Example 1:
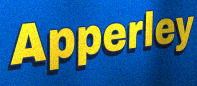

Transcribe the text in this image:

Apperley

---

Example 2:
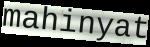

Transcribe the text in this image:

mahinyat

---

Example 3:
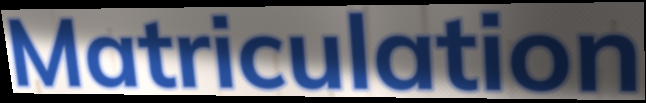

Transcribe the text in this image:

Matriculation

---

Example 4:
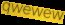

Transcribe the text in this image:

qwewew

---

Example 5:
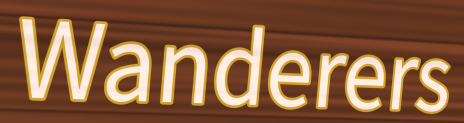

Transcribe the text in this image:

Wanderers